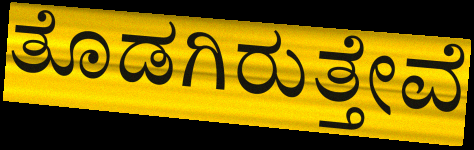
ತೊಡಗಿರುತ್ತೇವೆ